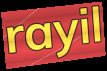
rayil